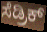
ಸೆಡ್ರಿಕ್